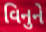
વિનુને